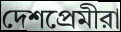
দেশপ্রেমীরা